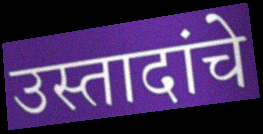
उस्तादांचे